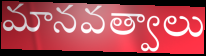
మానవత్వాలు